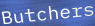
Butchers